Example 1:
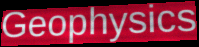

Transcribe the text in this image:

Geophysics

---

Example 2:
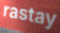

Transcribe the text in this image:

rastay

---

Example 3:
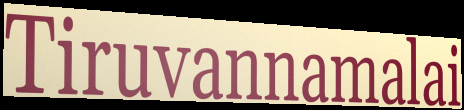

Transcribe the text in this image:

Tiruvannamalai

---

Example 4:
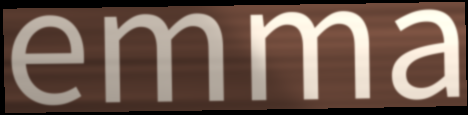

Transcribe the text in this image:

emma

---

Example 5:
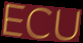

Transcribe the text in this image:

ECU